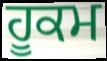
ਹੂਕਮ